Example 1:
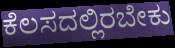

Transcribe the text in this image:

ಕೆಲಸದಲ್ಲಿರಬೇಕು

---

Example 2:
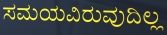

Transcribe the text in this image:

ಸಮಯವಿರುವುದಿಲ್ಲ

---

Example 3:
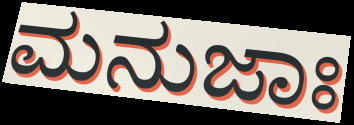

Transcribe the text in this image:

ಮನುಜಾಃ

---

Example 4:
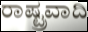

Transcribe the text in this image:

ರಾಷ್ಟ್ರವಾದಿ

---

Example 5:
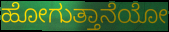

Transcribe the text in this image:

ಹೋಗುತ್ತಾನೆಯೋ